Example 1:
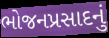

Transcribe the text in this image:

ભોજનપ્રસાદનું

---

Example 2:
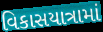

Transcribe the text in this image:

વિકાસયાત્રામાં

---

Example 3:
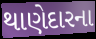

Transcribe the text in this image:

થાણેદારના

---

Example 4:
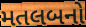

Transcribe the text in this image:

મતલબનો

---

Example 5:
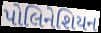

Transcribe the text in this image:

પોલિનેશિયન